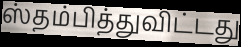
ஸ்தம்பித்துவிட்டது